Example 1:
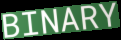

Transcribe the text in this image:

BINARY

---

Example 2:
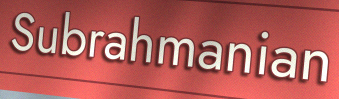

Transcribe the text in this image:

Subrahmanian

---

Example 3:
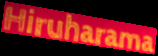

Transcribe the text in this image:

Hiruharama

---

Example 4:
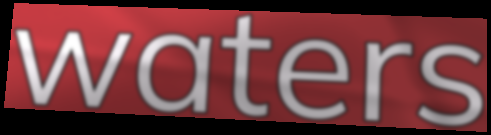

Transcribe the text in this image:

waters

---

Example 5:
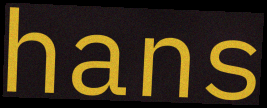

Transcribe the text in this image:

hans